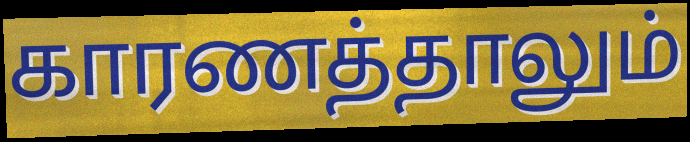
காரணத்தாலும்